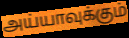
அய்யாவுக்கும்